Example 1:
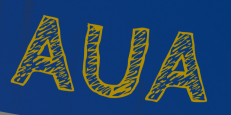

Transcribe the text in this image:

AUA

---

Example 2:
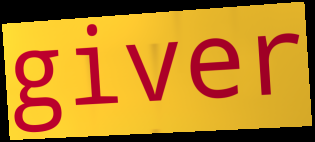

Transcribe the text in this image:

giver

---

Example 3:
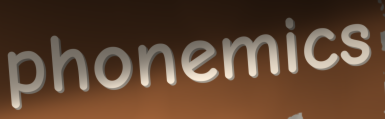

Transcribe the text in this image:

phonemics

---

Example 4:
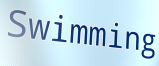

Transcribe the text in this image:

Swimming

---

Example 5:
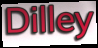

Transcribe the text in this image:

Dilley